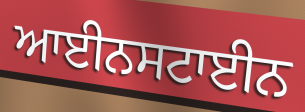
ਆਈਨਸਟਾਈਨ